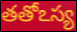
తతోఽస్య